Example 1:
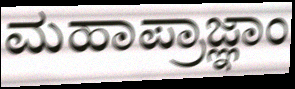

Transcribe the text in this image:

ಮಹಾಪ್ರಾಜ್ಞಾಂ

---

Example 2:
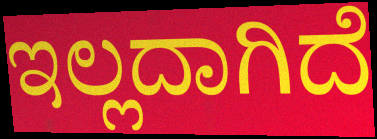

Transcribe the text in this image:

ಇಲ್ಲದಾಗಿದೆ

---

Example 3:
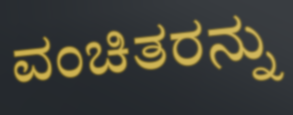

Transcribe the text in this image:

ವಂಚಿತರನ್ನು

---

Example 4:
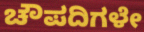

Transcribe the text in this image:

ಚೌಪದಿಗಳೇ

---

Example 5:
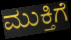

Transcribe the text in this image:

ಮುಕ್ತಿಗೆ